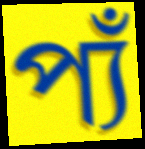
প্যঁ